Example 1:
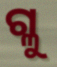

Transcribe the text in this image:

ଗ୍ଳୁ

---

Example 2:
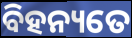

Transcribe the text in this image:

ବିହନ୍ୟତେ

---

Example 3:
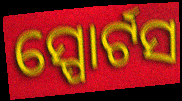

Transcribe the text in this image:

ସ୍ପୋର୍ଟସ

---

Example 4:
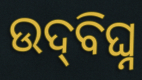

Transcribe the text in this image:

ଉଦ୍‌ବିଘ୍ନ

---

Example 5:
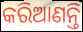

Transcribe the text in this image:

କରିଆଣନ୍ତି